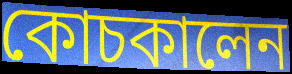
কোচকালেন